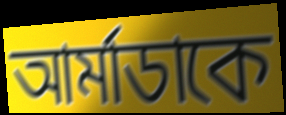
আর্মাডাকে